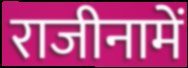
राजीनामें